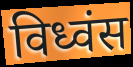
विध्वंस